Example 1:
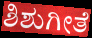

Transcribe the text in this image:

ಶಿಶುಗೀತೆ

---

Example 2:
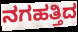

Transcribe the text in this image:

ನಗಹತ್ತಿದ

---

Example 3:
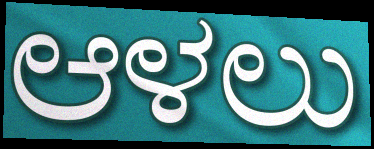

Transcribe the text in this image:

ಆಳಲು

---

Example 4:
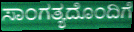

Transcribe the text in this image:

ಸಾಂಗತ್ಯದೊಂದಿಗೆ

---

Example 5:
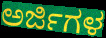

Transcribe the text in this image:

ಅರ್ಜಿಗಳ